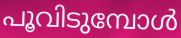
പൂവിടുമ്പോൾ